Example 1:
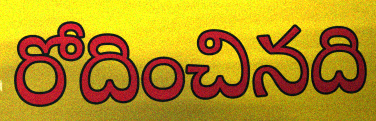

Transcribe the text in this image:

రోదించినది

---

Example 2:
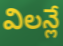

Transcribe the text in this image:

విలన్లే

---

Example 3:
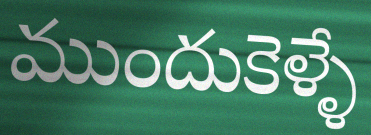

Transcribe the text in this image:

ముందుకెళ్ళే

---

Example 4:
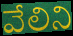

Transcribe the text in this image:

వేలిని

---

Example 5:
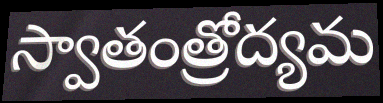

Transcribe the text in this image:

స్వాతంత్రోద్యమ